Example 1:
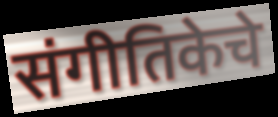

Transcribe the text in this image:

संगीतिकेचे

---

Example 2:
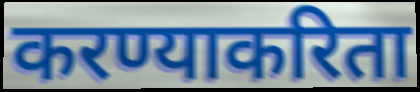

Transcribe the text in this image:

करण्याकरिता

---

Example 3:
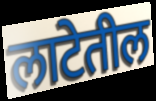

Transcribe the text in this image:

लाटेतील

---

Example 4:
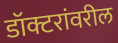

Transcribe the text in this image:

डॉक्टरांवरील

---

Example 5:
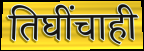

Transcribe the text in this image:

तिघींचाही